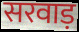
सरवाड़